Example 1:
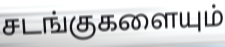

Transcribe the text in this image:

சடங்குகளையும்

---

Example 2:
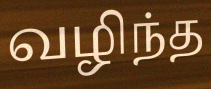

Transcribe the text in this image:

வழிந்த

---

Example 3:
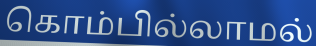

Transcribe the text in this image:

கொம்பில்லாமல்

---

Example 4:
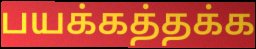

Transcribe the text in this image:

பயக்கத்தக்க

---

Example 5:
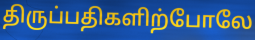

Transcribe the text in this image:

திருப்பதிகளிற்போலே